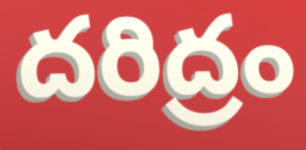
దరిద్రం